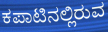
ಕಪಾಟಿನಲ್ಲಿರುವ